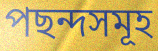
পছন্দসমূহ